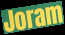
Joram